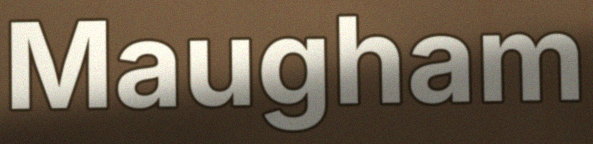
Maugham